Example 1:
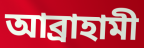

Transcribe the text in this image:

আব্ৰাহামী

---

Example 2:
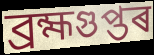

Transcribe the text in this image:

ব্ৰহ্মগুপ্তৰ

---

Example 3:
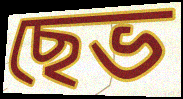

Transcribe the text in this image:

ছেভ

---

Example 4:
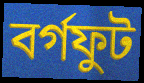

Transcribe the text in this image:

বৰ্গফুট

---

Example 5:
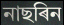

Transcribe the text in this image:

নাছৰিন